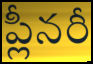
ప్లీనరీ